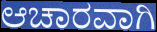
ಆಚಾರವಾಗಿ